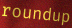
roundup